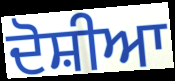
ਦੋਸ਼ੀਆ